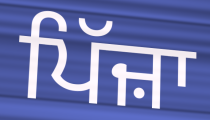
ਪਿੱਜ਼ਾ